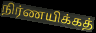
நிர்ணயிக்கத்